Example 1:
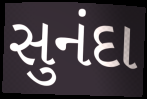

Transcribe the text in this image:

સુનંદા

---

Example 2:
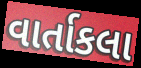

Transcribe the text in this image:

વાર્તાકલા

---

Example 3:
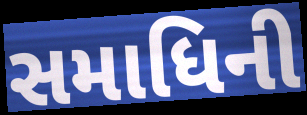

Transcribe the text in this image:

સમાધિની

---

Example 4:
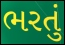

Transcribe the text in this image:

ભરતું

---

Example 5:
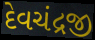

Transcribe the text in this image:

દેવચંદ્રજી